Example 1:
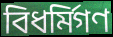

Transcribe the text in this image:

বিধর্মিগণ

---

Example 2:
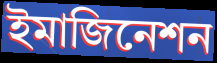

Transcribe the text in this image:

ইমাজিনেশন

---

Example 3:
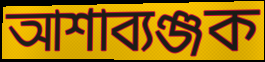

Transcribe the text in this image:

আশাব্যঞ্জক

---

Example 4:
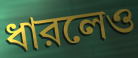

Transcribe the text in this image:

ধারলেও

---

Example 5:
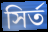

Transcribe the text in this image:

সির্ত